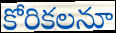
కోరికలనూ